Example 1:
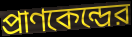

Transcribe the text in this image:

প্রাণকেন্দ্রের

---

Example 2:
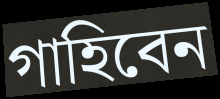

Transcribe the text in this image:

গাহিবেন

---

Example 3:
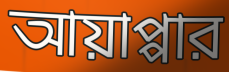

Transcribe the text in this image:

আয়াপ্পার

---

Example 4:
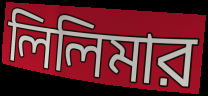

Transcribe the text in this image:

লিলিমার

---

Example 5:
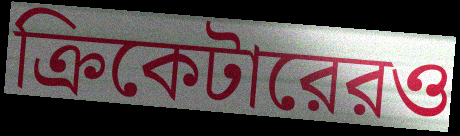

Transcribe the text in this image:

ক্রিকেটারেরও